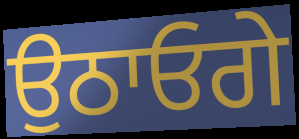
ਉਠਾਓਗੇ